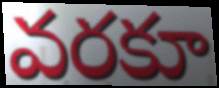
వరకూ